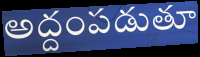
అద్దంపడుతూ